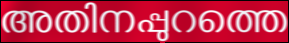
അതിനപ്പുറത്തെ